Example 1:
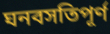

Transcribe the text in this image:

ঘনবসতিপূর্ণ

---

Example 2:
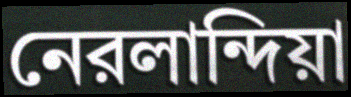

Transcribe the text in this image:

নেরলান্দিয়া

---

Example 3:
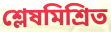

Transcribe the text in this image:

শ্লেষমিশ্রিত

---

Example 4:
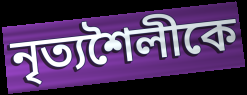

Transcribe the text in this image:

নৃত্যশৈলীকে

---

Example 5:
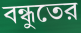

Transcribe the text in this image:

বন্ধুতের